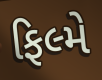
ફિલ્મે